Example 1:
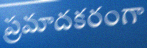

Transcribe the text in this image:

ప్రమాదకరంగా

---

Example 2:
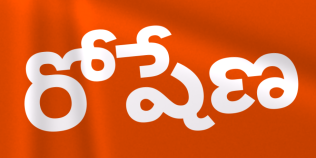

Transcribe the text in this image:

రోషేణ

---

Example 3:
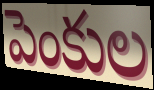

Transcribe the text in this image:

పెంకుల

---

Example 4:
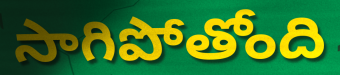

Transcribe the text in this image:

సాగిపోతోంది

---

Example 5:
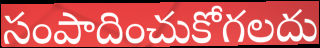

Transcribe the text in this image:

సంపాదించుకోగలదు